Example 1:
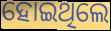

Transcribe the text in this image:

ହୋଇଥିଲେ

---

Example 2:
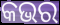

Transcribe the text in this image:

କଭର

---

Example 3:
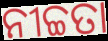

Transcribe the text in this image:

ନୀଚ୍ଚତା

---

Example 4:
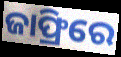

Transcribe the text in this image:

ଜାଫ୍ରିରେ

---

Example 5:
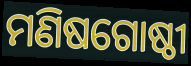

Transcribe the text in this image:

ମଣିଷଗୋଷ୍ଠୀ